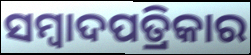
ସମ୍ବାଦପତ୍ରିକାର